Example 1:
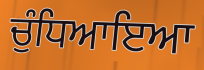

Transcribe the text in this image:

ਚੁੰਧਿਆਇਆ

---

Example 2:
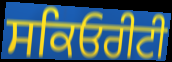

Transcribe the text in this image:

ਸਕਿਓਰੀਟੀ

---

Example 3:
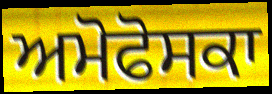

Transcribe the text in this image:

ਅਮੋਫੋਸਕਾ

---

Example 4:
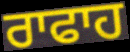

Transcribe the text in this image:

ਰਾਫਾਹ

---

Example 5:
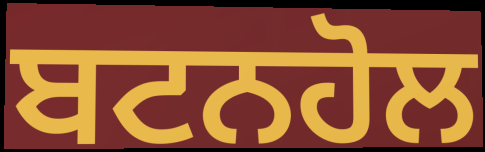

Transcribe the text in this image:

ਬਟਨਹੋਲ